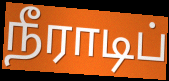
நீராடிப்